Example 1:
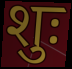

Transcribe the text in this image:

शुः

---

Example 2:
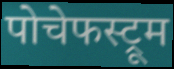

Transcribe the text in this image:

पोचेफस्ट्रूम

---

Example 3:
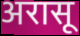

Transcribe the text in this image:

अरासू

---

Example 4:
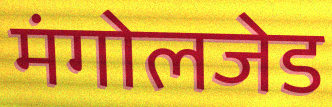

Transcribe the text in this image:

मंगोलजेड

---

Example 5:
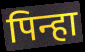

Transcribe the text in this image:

पिन्हा